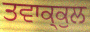
ਤਵਾਕ੍ਕੁਲ